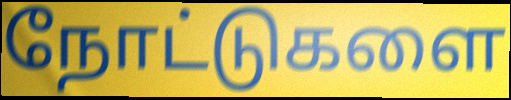
நோட்டுகளை